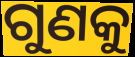
ଗୁଣକୁ